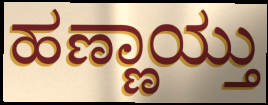
ಹಣ್ಣಾಯ್ತು